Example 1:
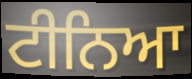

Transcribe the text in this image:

ਟੀਨਿਆ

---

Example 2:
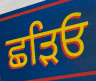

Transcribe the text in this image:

ਛੜਿਓ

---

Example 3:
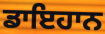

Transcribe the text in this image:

ਡਾਇਹਾਨ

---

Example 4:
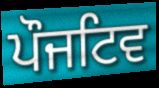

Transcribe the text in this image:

ਪੌਜਟਿਵ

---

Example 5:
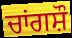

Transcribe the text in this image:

ਚਾਂਗਸ਼ੌ